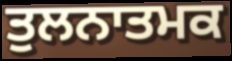
ਤੁਲਨਾਤਮਕ